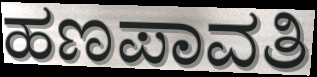
ಹಣಪಾವತಿ